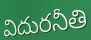
విదురనీతి